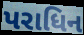
પરાધિન